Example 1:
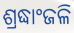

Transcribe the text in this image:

ଶ୍ରଦ୍ଧାଂଜଳି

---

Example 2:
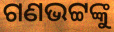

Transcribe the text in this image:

ଗଣଭଟ୍ଟଙ୍କୁ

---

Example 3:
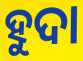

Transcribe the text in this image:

ହୁଦା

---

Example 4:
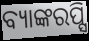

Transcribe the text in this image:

ବ୍ୟାଙ୍କରପ୍ସି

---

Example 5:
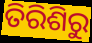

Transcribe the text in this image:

ତିରିଶିରୁ